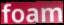
foam